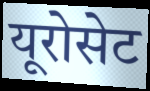
यूरोसेट